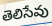
తెలిసేవు